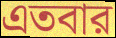
এতবার